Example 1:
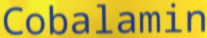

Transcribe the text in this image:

Cobalamin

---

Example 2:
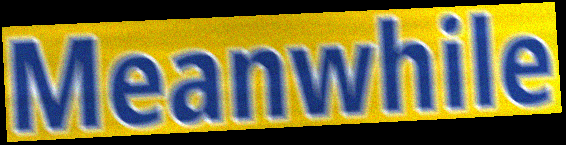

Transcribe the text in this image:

Meanwhile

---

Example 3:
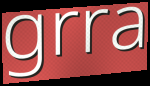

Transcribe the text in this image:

grra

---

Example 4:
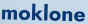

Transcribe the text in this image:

moklone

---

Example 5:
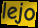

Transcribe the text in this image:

lejo